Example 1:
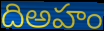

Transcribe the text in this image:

దిఅహం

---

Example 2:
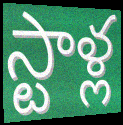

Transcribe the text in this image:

స్టాళ్ల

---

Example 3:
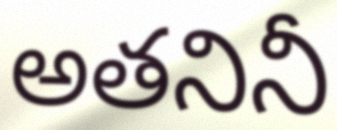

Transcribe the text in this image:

అతనినీ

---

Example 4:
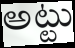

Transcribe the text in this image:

అట్టు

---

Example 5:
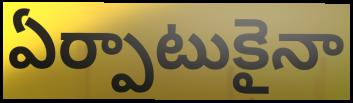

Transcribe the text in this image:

ఏర్పాటుకైనా